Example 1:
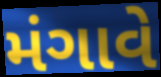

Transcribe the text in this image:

મંગાવે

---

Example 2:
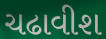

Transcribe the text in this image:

ચઢાવીશ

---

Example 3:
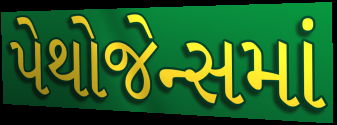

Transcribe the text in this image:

પેથોજેન્સમાં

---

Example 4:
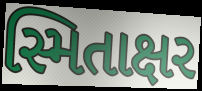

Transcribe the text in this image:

સ્મિતાક્ષર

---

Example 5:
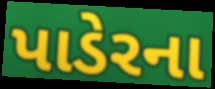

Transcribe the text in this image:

પાડેરના